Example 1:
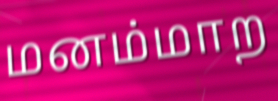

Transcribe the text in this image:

மனம்மாற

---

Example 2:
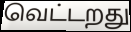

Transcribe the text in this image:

வெட்டறது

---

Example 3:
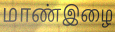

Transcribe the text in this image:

மாண்இழை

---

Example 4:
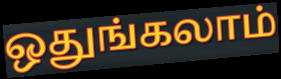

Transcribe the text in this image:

ஒதுங்கலாம்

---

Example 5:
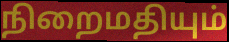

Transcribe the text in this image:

நிறைமதியும்